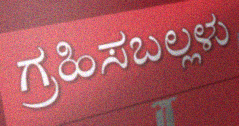
ಗ್ರಹಿಸಬಲ್ಲಳು